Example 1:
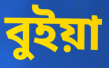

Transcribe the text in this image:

বুইয়া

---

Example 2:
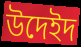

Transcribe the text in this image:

উদেইদ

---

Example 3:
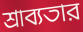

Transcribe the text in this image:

শ্রাব্যতার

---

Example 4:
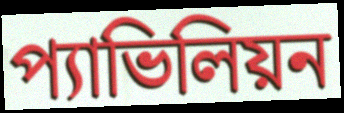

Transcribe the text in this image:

প্যাভিলিয়ন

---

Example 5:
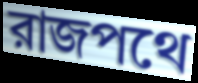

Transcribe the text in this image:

রাজপথে